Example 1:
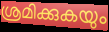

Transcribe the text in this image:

ശ്രമിക്കുകയും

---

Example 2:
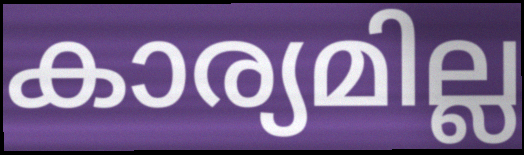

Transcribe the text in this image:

കാര്യമില്ല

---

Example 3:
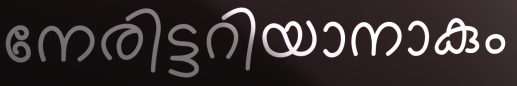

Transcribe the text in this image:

നേരിട്ടറിയാനാകും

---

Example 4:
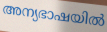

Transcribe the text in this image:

അന്യഭാഷയിൽ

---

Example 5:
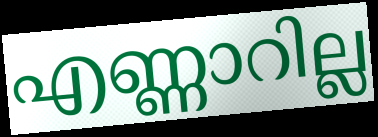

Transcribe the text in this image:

എണ്ണാറില്ല